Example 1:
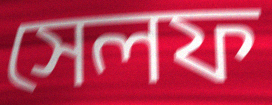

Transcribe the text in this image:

সেলফ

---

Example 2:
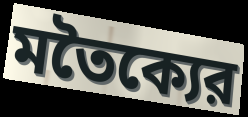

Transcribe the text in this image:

মতৈক্যের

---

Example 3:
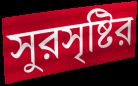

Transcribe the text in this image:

সুরসৃষ্টির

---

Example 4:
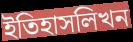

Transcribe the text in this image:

ইতিহাসলিখন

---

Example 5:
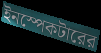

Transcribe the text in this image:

ইনস্পেকটারের